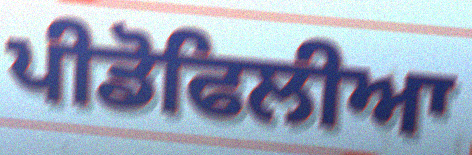
ਪੀਡੋਫਿਲੀਆ